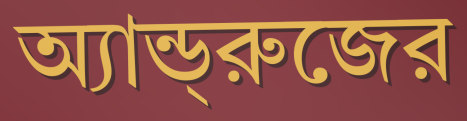
অ্যান্ড্‌রুজের